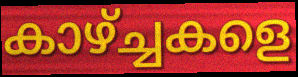
കാഴ്ച്ചകളെ